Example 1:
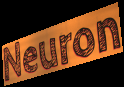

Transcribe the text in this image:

Neuron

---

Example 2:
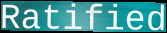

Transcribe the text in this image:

Ratified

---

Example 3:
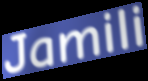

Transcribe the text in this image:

Jamili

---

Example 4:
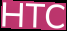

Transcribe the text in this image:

HTC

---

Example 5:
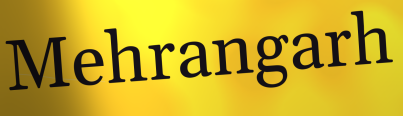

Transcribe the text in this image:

Mehrangarh